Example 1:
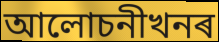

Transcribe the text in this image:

আলোচনীখনৰ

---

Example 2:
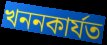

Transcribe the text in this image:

খননকাৰ্যত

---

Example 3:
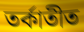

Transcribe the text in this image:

তৰ্কাতীত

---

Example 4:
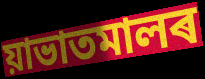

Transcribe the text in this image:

য়াভাতমালৰ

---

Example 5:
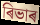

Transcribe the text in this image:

ৰিভাৰ